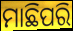
ମାଛିପରି